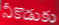
నీకొడుకు